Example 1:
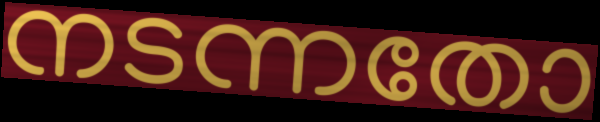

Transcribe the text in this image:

നടന്നതോ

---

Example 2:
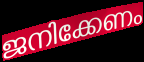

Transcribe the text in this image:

ജനിക്കേണം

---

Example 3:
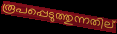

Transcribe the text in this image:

രൂപപ്പെടുത്തുന്നതില്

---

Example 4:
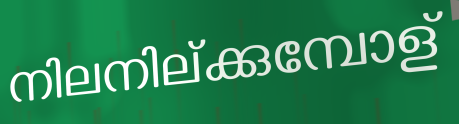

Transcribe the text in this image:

നിലനില്ക്കുമ്പോള്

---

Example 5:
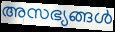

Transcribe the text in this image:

അസഭ്യങ്ങൾ